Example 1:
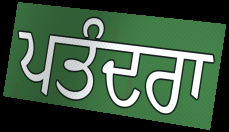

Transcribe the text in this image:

ਪਤੰਦਰਾ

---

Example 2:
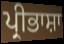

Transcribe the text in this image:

ਪ੍ਰੀਭਾਸ਼ਾ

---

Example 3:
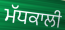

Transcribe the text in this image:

ਮੱਧਕਾਲੀ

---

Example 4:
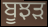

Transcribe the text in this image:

ਬੂਝੜ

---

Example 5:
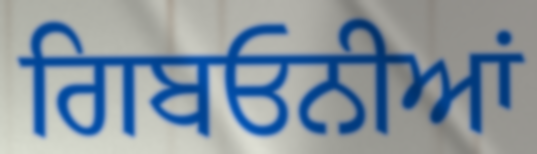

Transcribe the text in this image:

ਗਿਬਓਨੀਆਂ